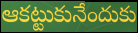
ఆకట్టుకునేందుకు